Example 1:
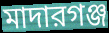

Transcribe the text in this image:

মাদারগঞ্জ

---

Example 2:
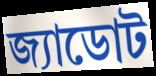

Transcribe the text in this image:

জ্যাডোট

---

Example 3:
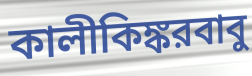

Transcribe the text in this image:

কালীকিঙ্করবাবু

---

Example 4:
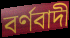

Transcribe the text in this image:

বর্ণবাদী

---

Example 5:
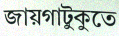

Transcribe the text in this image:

জায়গাটুকুতে